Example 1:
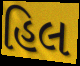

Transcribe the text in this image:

હિલ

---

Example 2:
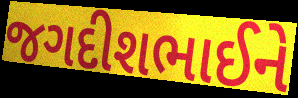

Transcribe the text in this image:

જગદીશભાઈને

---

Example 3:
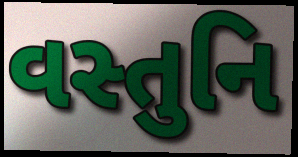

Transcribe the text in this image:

વસ્તુનિ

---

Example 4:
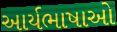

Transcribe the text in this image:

આર્યભાષાઓ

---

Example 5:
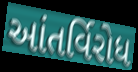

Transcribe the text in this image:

આંતર્વિરોધ